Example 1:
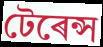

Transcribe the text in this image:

টেৰেন্স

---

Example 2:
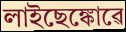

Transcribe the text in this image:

লাইছেঙ্কোৱে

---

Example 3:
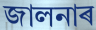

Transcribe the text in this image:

জালনাৰ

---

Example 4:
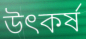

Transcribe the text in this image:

উৎকৰ্ষ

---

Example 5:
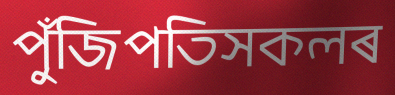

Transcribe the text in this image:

পুঁজিপতিসকলৰ